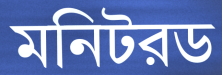
মনিটরড